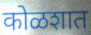
कोळशात